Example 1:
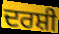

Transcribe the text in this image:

ਦਰਸ਼ੀ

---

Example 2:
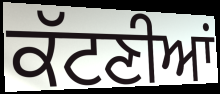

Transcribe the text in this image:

ਕੱਟਣੀਆਂ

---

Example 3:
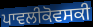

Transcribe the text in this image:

ਪਾਵਲੀਕੋਵਸਕੀ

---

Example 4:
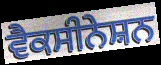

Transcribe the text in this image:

ਵੈਕਸੀਨੇਸ਼ਨ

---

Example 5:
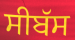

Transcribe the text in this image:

ਸੀਬੱਸ